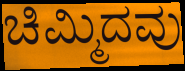
ಚಿಮ್ಮಿದವು